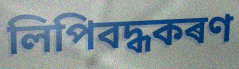
লিপিবদ্ধকৰণ